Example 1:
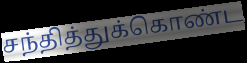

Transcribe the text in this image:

சந்தித்துக்கொண்ட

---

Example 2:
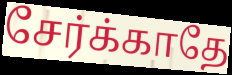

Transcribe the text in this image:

சேர்க்காதே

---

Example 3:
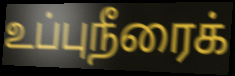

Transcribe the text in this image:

உப்புநீரைக்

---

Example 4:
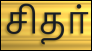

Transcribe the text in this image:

சிதர்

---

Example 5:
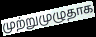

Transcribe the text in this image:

முற்றுமுழுதாக